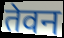
तेवन